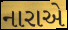
નારાએ